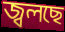
জ্বলছে